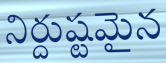
నిర్దుష్టమైన